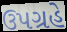
ઉપગ્રહે